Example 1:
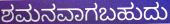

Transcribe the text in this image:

ಶಮನವಾಗಬಹುದು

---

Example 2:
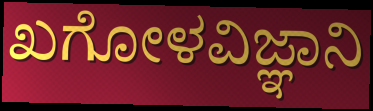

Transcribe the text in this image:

ಖಗೋಳವಿಜ್ಞಾನಿ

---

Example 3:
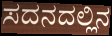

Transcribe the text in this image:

ಸದನದಲ್ಲಿನ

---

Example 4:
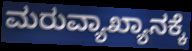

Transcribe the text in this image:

ಮರುವ್ಯಾಖ್ಯಾನಕ್ಕೆ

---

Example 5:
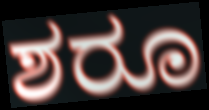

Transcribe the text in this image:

ಶರೂ